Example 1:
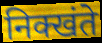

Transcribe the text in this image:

निक्खंते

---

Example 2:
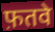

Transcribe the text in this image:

फ़तवे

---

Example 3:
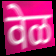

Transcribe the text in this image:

वेळ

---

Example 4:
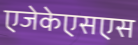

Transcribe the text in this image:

एजेकेएसएस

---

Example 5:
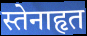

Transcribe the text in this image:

स्तेनाहृत